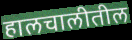
हालचालीतील